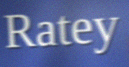
Ratey